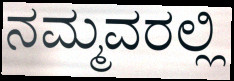
ನಮ್ಮವರಲ್ಲಿ